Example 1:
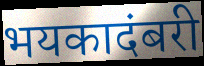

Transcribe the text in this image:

भयकादंबरी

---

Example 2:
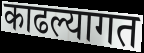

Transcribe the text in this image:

काढल्यागत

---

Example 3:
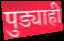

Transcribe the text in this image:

पुड्याही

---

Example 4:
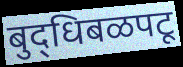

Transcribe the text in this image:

बुद्धिबळपटू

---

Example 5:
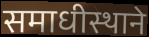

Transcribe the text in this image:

समाधीस्थाने